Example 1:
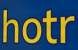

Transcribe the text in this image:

hotr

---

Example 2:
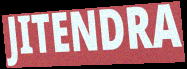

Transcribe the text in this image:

JITENDRA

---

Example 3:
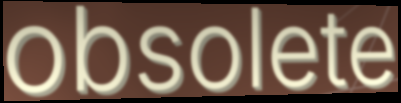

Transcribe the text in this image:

obsolete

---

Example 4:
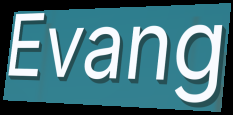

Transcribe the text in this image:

Evang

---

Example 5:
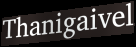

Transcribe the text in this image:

Thanigaivel